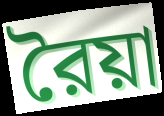
রৈয়া